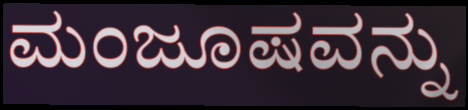
ಮಂಜೂಷವನ್ನು